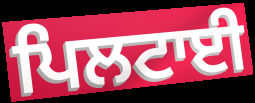
ਪਿਲਟਾਈ